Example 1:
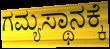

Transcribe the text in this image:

ಗಮ್ಯಸ್ಥಾನಕ್ಕೆ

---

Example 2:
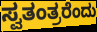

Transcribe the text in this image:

ಸ್ವತಂತ್ರರೆಂದು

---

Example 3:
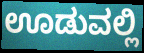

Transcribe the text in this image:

ಊಡುವಲ್ಲಿ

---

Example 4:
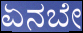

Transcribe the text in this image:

ಏನಬೇ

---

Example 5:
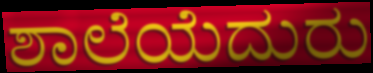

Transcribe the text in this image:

ಶಾಲೆಯೆದುರು